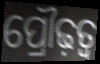
ପ୍ରୌଢ଼ତ୍ୱ